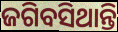
ଜଗିବସିଥାନ୍ତି